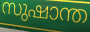
സുഷാന്ത